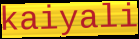
kaiyali